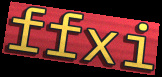
ffxi